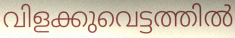
വിളക്കുവെട്ടത്തിൽ